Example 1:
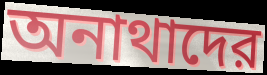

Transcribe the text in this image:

অনাথাদের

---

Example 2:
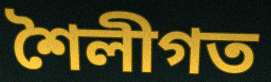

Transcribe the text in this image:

শৈলীগত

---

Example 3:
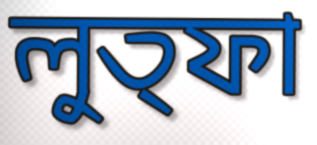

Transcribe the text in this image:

লুত্ফা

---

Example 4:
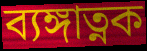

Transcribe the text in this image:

ব্যঙ্গাত্নক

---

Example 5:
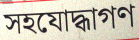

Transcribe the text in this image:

সহযোদ্ধাগণ